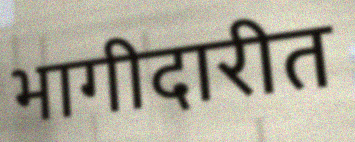
भागीदारीत